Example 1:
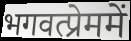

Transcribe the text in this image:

भगवत्प्रेममें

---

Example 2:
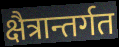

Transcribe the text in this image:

क्षैत्रान्तर्गत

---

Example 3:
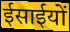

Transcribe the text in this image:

ईसाईयों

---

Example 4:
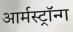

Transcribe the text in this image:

आर्मस्ट्रॉन्ग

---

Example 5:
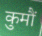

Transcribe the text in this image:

कुमौं